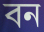
বন